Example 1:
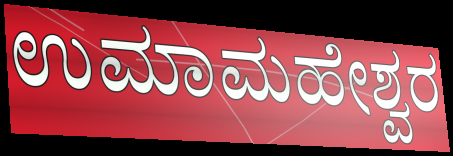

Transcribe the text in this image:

ಉಮಾಮಹೇಶ್ವರ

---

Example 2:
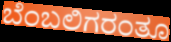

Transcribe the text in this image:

ಬೆಂಬಲಿಗರಂತೂ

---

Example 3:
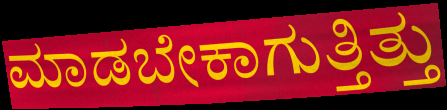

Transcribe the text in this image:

ಮಾಡಬೇಕಾಗುತ್ತಿತ್ತು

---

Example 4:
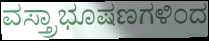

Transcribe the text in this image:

ವಸ್ತ್ರಾಭೂಷಣಗಳಿಂದ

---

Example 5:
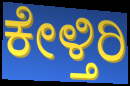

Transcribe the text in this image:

ಕೇಳ್ತಿರಿ